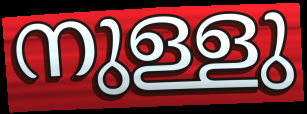
നുള്ളു